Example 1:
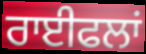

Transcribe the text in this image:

ਰਾਈਫਲਾਂ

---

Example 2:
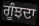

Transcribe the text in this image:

ਗੂੰਝਦਾ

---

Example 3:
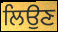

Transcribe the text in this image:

ਲਿਉਣ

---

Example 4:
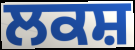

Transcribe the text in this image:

ਲਕਸ਼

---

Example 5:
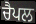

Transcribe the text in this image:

ਚੈਪਲ